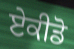
ਏਕੀਡੋ